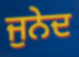
ਜੁਨੇਦ